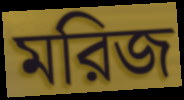
মরিজ